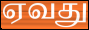
ஏவது